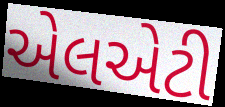
એલએટી